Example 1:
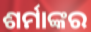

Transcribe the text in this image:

ଶର୍ମାଙ୍କର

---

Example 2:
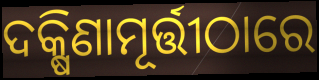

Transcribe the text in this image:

ଦକ୍ଷିଣାମୂର୍ତ୍ତୀଠାରେ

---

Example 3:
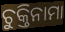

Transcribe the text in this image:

ଚୁକ୍ତିନାମା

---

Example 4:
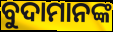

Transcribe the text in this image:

ବୁଦାମାନଙ୍କ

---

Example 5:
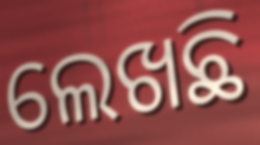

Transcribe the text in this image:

ଲେଖଛି